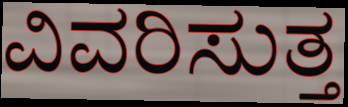
ವಿವರಿಸುತ್ತ